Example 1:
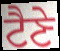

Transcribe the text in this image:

ਟੈਣੇ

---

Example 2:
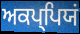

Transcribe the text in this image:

ਅਕਪ੍ਪਿਯਂ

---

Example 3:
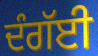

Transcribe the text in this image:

ਦੰਗੱਈ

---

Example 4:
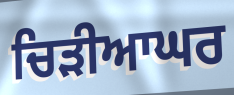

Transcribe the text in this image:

ਚਿੜੀਆਘਰ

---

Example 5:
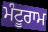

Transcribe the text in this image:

ਮੰਟੂਰਾਮ